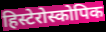
हिस्टेरोस्कोपिक